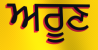
ਅਰੂਣ